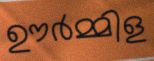
ഊർമ്മിള